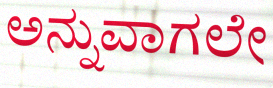
ಅನ್ನುವಾಗಲೇ